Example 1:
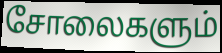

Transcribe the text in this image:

சோலைகளும்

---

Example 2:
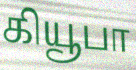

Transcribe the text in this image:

கியூபா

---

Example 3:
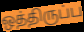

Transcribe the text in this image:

ஒத்திருப்ப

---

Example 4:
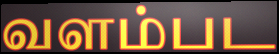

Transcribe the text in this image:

வளம்பட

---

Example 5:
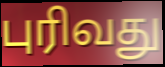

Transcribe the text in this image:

புரிவது